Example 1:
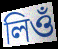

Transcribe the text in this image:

লিওঁ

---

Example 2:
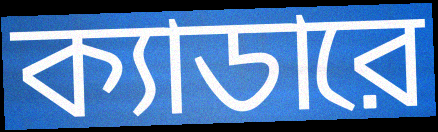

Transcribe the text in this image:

ক্যাডারে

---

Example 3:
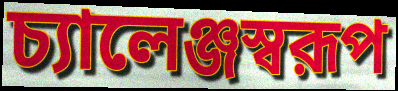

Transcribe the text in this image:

চ্যালেঞ্জস্বরূপ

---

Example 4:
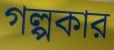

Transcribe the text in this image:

গল্পকার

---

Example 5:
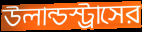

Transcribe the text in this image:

উলান্ডস্ট্রাসের